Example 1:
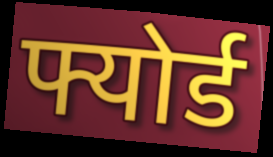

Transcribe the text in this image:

फ्योर्ड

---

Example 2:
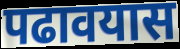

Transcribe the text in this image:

पढावयास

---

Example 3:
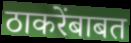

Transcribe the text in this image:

ठाकरेंबाबत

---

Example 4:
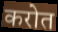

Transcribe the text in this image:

करोत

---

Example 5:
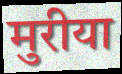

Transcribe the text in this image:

मुरीया